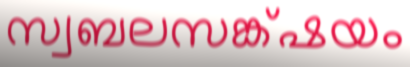
സ്വബലസങ്ക്ഷയം